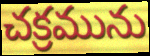
చక్రమును